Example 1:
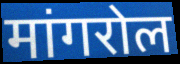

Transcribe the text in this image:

मांगरोल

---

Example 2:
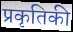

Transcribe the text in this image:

प्रकृतिकी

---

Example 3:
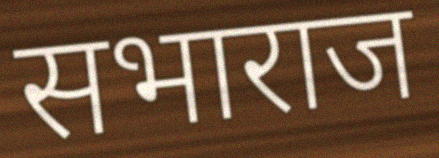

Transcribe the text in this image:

सभाराज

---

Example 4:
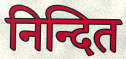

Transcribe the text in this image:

निन्दित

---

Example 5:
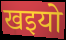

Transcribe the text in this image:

खइयो